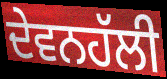
ਦੇਵਨਹੱਲੀ